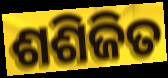
ଶଶିଜିତ